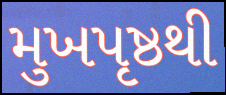
મુખપૃષ્ઠથી